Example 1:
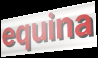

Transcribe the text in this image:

equina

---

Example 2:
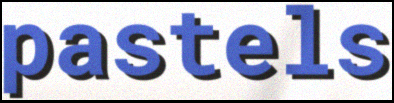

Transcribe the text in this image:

pastels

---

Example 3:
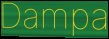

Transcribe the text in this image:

Dampa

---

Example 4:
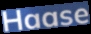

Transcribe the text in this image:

Haase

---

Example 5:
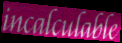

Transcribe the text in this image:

incalculable